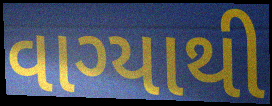
વાગ્યાથી